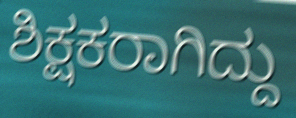
ಶಿಕ್ಷಕರಾಗಿದ್ದು